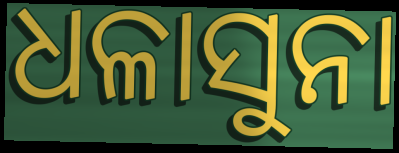
ଧଳାସୁନା